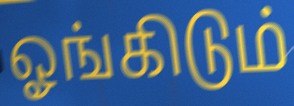
ஓங்கிடும்